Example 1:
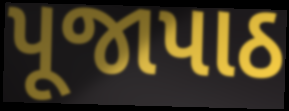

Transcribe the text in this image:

પૂજાપાઠ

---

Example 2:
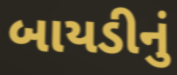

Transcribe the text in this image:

બાયડીનું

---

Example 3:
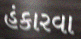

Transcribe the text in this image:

હંકારવા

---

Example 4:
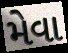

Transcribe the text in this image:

મેવા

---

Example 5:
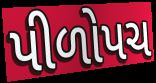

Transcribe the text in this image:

પીળોપચ